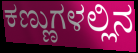
ಕಣ್ಣುಗಳಲ್ಲಿನ